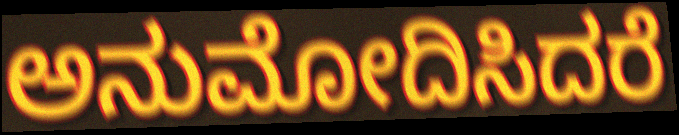
ಅನುಮೋದಿಸಿದರೆ